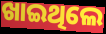
ଖାଇଥିଲେ